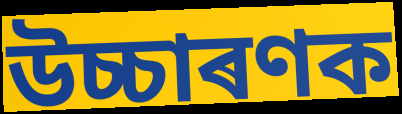
উচ্চাৰণক